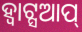
ହ୍ବାଟ୍ସଆପ୍